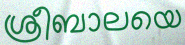
ശ്രീബാലയെ